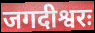
जगदीश्वरः